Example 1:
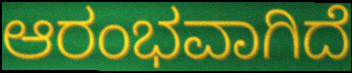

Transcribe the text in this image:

ಆರಂಭವಾಗಿದೆ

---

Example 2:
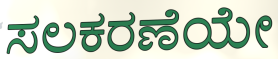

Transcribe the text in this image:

ಸಲಕರಣೆಯೇ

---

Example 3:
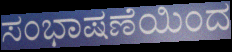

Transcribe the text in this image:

ಸಂಭಾಷಣೆಯಿಂದ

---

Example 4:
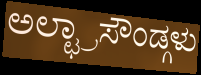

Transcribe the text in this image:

ಅಲ್ಟ್ರಾಸೌಂಡ್ಗಳು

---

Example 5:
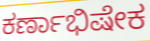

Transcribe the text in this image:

ಕರ್ಣಾಭಿಷೇಕ